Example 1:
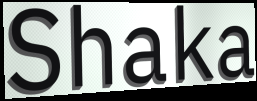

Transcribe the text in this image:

Shaka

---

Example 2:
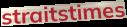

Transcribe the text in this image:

straitstimes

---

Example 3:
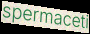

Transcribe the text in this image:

spermaceti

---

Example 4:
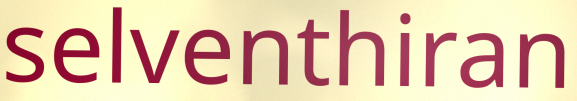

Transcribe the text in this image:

selventhiran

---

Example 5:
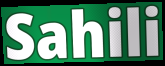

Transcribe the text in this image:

Sahili